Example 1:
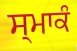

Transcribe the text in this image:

ਸ੍ਮਾਕੰ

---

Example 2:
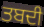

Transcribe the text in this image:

ਤਬਦੀ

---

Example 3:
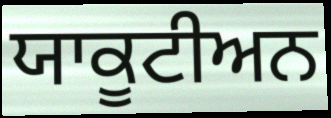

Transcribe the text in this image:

ਯਾਕੂਟੀਅਨ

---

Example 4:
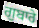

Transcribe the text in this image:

ਗੁਬਾਰੇ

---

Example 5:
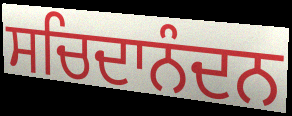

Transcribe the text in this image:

ਸਚਿਦਾਨੰਦਨ